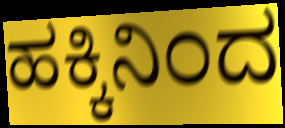
ಹಕ್ಕಿನಿಂದ